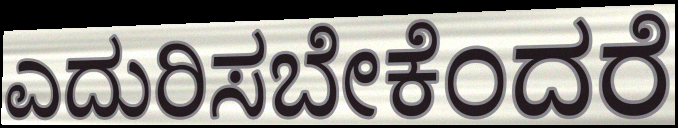
ಎದುರಿಸಬೇಕೆಂದರೆ